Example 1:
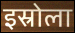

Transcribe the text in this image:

इस्रोला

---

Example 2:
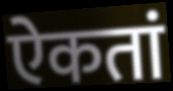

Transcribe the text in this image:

ऐकतां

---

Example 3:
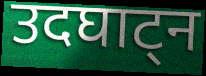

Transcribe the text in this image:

उदघाट्न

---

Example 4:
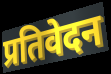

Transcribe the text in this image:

प्रतिवेदन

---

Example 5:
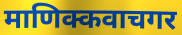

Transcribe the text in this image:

माणिक्कवाचगर